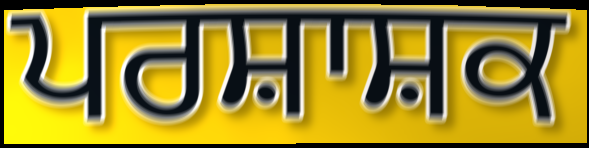
ਪਰਸ਼ਾਸ਼ਕ